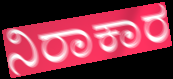
ನಿರಾಕಾರ